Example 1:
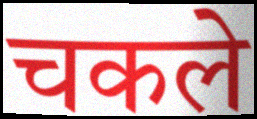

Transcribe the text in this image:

चकले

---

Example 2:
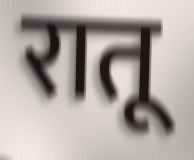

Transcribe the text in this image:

रातू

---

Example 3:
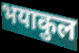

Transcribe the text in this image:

भयाकुल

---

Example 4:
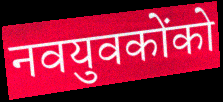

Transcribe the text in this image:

नवयुवकोंको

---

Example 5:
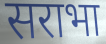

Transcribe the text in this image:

सराभा